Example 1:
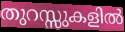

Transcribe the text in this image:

തുറസ്സുകളിൽ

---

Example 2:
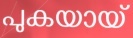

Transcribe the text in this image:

പുകയായ്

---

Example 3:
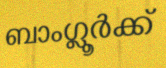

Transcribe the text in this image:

ബാംഗ്ലൂർക്ക്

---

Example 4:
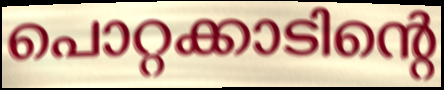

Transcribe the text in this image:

പൊറ്റക്കാടിന്റെ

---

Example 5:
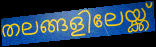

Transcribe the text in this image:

തലങ്ങളിലേയ്ക്ക്